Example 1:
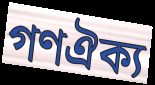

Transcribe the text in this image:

গণঐক্য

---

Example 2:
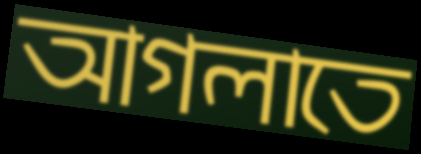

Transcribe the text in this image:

আগলাতে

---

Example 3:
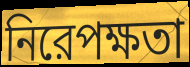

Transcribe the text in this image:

নিরেপক্ষতা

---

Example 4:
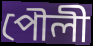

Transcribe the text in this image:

পৌলী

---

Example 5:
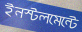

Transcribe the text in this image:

ইনস্টলমেন্টে